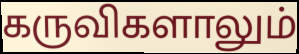
கருவிகளாலும்